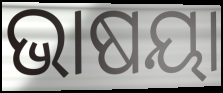
ଭାଷୟା